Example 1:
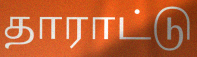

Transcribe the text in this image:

தாராட்டு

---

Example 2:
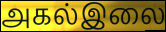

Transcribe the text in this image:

அகல்இலை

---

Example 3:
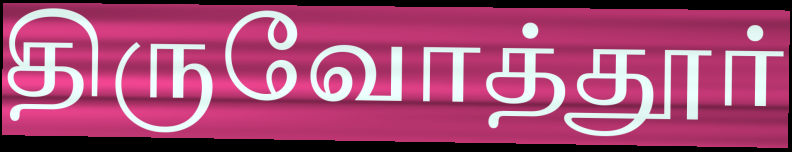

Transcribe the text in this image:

திருவோத்தூர்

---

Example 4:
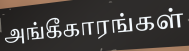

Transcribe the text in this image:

அங்கீகாரங்கள்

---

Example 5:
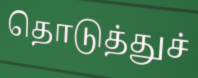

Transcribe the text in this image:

தொடுத்துச்